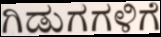
ಗಿಡುಗಗಳಿಗೆ